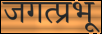
जगत्प्रभू